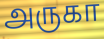
அருகா